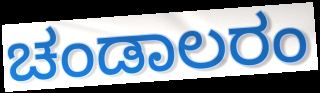
ಚಂಡಾಲರಂ